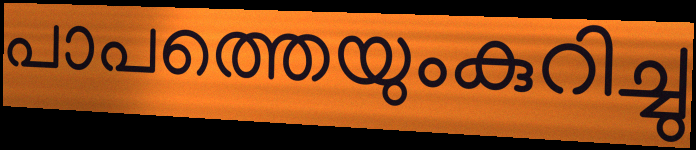
പാപത്തെയുംകുറിച്ചു